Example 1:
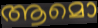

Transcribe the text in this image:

ആമൊ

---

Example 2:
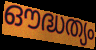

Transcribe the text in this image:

ഔദ്ധത്യം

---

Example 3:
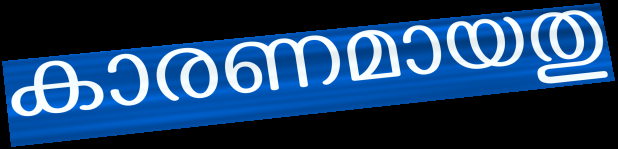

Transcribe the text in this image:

കാരണമായതു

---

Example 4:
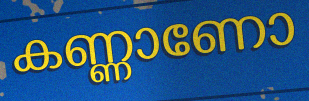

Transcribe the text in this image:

കണ്ണാണോ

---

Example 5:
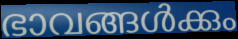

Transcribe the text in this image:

ഭാവങ്ങൾക്കും